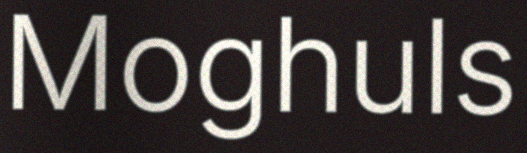
Moghuls